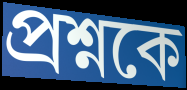
প্রশ্নকে